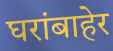
घरांबाहेर